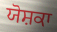
ਯੋਸ਼ਕਾ